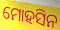
ମୋହସିନ